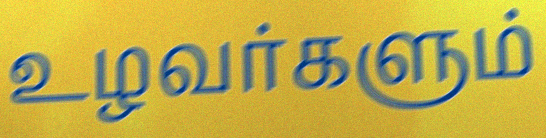
உழவர்களும்